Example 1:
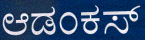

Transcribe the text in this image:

ಆಡಂಕಸ್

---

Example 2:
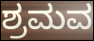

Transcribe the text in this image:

ಶ್ರಮವ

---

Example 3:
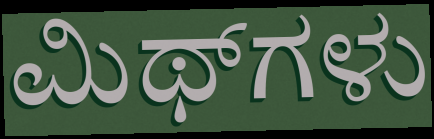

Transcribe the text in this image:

ಮಿಥ್‌ಗಳು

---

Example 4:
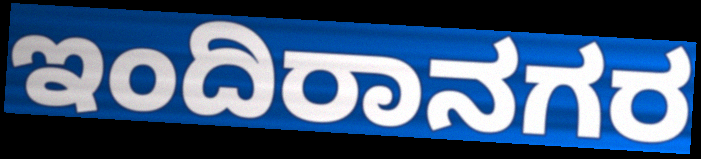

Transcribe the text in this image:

ಇಂದಿರಾನಗರ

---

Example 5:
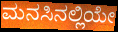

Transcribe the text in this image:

ಮನಸಿನಲ್ಲಿಯೇ